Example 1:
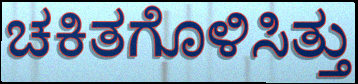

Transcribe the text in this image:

ಚಕಿತಗೊಳಿಸಿತ್ತು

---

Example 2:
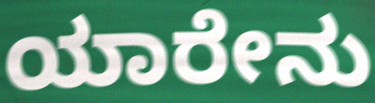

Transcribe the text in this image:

ಯಾರೇನು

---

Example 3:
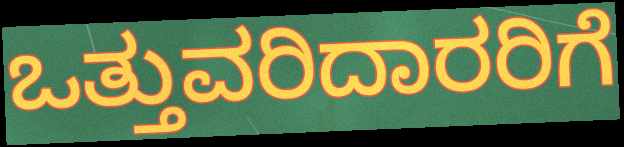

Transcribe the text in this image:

ಒತ್ತುವರಿದಾರರಿಗೆ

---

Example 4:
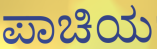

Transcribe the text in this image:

ಪಾಚಿಯ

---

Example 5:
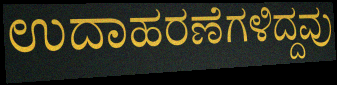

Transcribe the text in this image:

ಉದಾಹರಣೆಗಳಿದ್ದವು